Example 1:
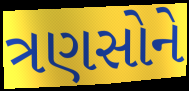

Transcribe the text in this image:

ત્રણસોને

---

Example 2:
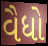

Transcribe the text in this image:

વૈધો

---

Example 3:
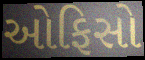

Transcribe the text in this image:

ઓફિસો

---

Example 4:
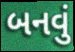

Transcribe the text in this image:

બનવું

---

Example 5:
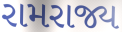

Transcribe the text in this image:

રામરાજ્ય